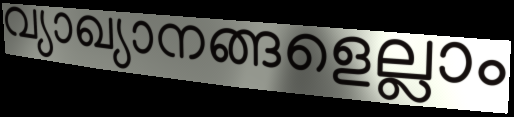
വ്യാഖ്യാനങ്ങളെല്ലാം